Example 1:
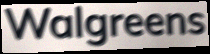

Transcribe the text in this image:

Walgreens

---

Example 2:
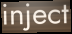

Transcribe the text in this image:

inject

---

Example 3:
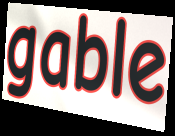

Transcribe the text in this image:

gable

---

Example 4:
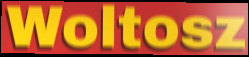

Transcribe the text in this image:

Woltosz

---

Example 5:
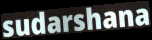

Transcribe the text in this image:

sudarshana